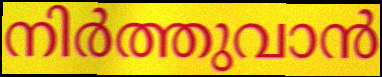
നിർത്തുവാൻ